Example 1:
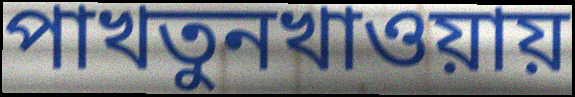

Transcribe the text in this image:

পাখতুনখাওয়ায়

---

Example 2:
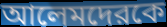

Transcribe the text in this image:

আলেমদেরকে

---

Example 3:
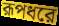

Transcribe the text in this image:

রূপধরে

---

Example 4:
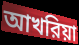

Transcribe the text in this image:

আখরিয়া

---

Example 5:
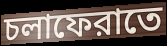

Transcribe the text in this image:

চলাফেরাতে